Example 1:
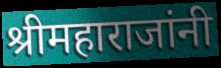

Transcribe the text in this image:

श्रीमहाराजांनी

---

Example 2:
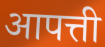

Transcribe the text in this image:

आपत्ती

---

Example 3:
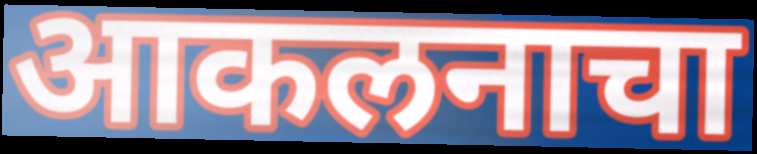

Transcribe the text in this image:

आकलनाचा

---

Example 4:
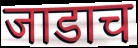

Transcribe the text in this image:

जाडाच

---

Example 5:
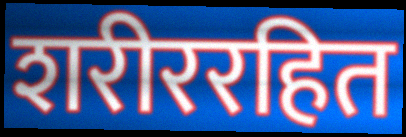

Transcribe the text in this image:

शरीररहित